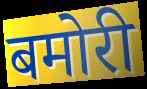
बमोरी